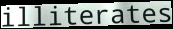
illiterates